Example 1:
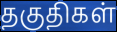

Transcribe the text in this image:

தகுதிகள்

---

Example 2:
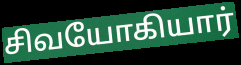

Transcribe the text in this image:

சிவயோகியார்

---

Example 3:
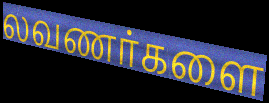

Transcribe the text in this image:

லவணர்களை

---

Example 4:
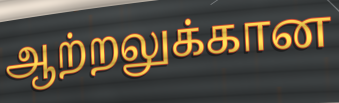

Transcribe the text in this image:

ஆற்றலுக்கான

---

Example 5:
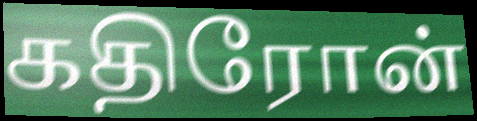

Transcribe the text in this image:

கதிரோன்